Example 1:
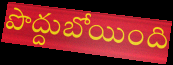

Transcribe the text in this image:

పొద్దుబోయింది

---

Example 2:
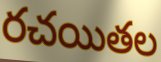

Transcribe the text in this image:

రచయితల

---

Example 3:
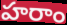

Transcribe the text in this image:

హరాం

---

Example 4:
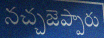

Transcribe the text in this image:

నచ్చజెప్పారు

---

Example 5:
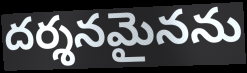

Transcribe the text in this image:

దర్శనమైనను